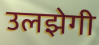
उलझेगी